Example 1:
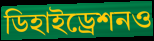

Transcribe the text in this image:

ডিহাইড্রেশনও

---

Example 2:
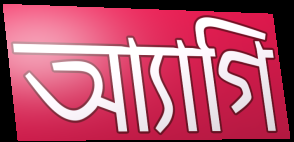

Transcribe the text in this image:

আ্যাগি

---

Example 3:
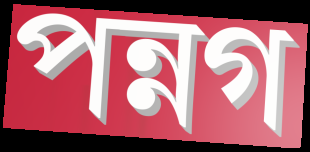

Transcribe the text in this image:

পন্নগ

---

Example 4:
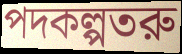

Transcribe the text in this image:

পদকল্পতরু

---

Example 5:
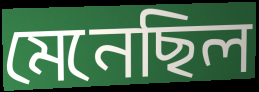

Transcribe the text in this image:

মেনেছিল